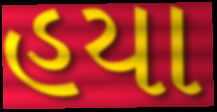
હયા